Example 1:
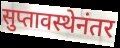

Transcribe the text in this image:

सुप्तावस्थेनंतर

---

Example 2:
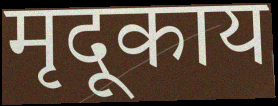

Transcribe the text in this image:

मृदूकाय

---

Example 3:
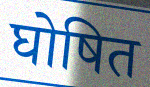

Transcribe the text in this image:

घोषित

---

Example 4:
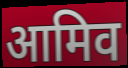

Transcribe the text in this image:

आमिव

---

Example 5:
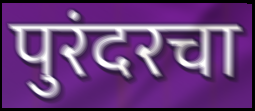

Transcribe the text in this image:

पुरंदरचा